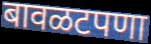
बावळटपणा